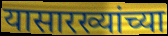
यासारख्यांच्या